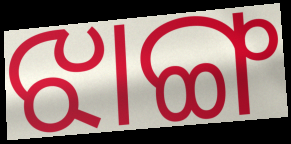
ଝାଙ୍ଗ